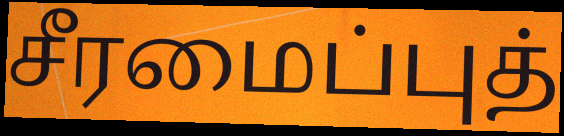
சீரமைப்புத்